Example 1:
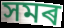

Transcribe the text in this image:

সমৰ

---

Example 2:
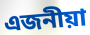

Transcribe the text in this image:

এজনীয়া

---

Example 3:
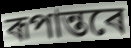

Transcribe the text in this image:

ৰূপান্তৰে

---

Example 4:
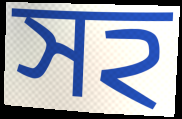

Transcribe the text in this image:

সহ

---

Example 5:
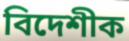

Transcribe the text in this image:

বিদেশীক